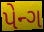
પેન્ગ